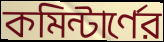
কমিন্টার্ণের